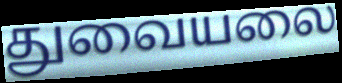
துவையலை